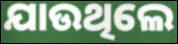
ଯାଉଥିଲେ